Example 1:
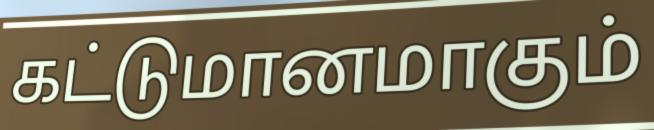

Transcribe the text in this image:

கட்டுமானமாகும்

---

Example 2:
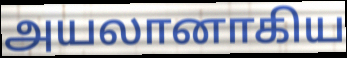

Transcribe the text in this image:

அயலானாகிய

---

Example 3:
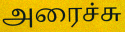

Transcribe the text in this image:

அரைச்சு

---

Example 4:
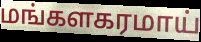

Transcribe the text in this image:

மங்களகரமாய்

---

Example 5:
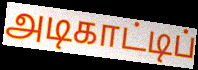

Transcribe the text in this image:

அடிகாட்டிப்